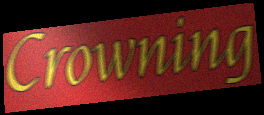
Crowning